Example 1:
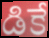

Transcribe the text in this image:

డికే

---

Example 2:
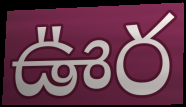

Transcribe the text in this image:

ఊర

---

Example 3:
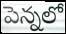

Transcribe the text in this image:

పెన్నలో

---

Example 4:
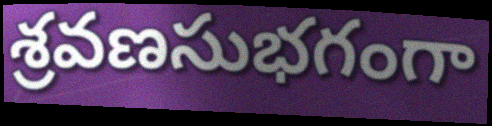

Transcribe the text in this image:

శ్రవణసుభగంగా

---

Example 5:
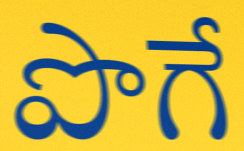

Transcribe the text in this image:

పొగే